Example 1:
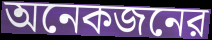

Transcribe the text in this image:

অনেকজনের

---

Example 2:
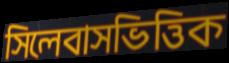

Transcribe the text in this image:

সিলেবাসভিত্তিক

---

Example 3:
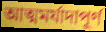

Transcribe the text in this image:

আত্মমর্যাদাপূর্ণ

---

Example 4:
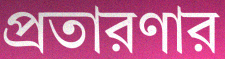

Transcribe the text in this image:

প্রতারণার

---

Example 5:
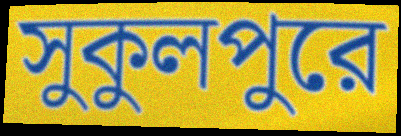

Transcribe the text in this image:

সুকুলপুরে